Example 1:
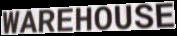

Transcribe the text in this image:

WAREHOUSE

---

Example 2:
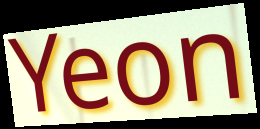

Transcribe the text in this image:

Yeon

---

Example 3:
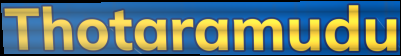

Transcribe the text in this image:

Thotaramudu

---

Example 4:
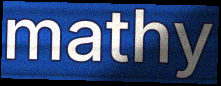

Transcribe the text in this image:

mathy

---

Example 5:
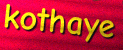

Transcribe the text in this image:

kothaye